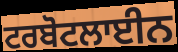
ਟਰਬੋਟਲਾਈਨ